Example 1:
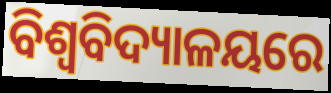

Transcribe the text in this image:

ବିଶ୍ବବିଦ୍ୟାଳୟରେ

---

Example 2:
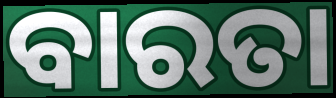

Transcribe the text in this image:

ବାରତା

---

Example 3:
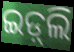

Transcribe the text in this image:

ଇଡ଼୍‌ଲି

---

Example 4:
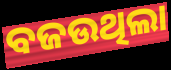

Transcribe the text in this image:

ବଜଉଥିଲା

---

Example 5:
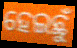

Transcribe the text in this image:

ହେଇଛୁଁ